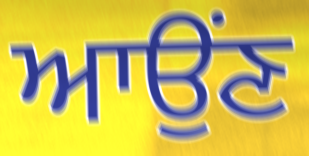
ਆਉਂਣ